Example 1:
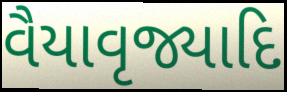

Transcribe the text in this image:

વૈયાવૃજ્યાદિ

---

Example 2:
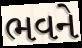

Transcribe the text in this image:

ભવને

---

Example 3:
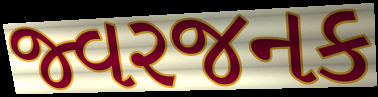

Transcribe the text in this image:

જ્વરજનક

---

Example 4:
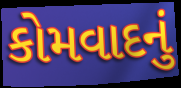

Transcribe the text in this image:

કોમવાદનું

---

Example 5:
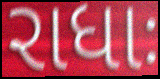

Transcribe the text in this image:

રાધાઃ